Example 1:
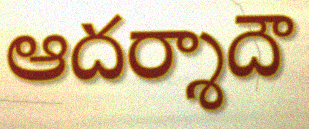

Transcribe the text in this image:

ఆదర్శాదౌ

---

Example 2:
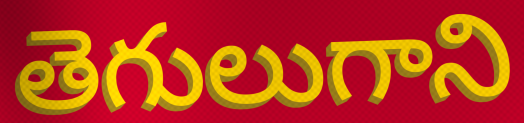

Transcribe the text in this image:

తెగులుగాని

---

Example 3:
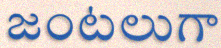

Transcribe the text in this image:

జంటలుగా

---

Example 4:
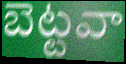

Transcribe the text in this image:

బెట్టవా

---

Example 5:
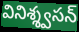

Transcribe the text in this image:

వినిశ్శ్వసన్